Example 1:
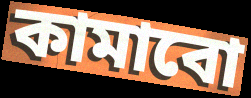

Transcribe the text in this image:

কামাবো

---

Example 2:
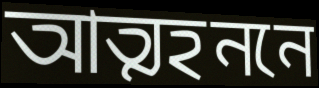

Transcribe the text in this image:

আত্মহননে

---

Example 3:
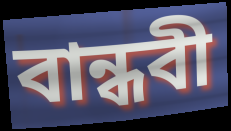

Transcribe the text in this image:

বান্ধবী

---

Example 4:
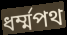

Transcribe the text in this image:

ধর্ম্মপথ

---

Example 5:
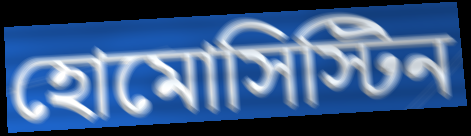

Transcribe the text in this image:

হোমোসিস্টিন